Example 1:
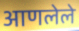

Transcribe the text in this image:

आणलेले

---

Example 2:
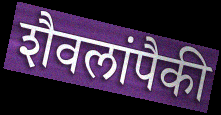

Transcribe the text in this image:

शैवलांपैकी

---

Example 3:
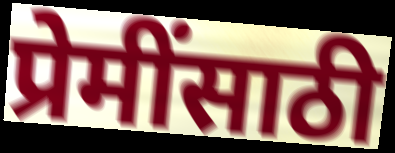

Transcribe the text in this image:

प्रेमींसाठी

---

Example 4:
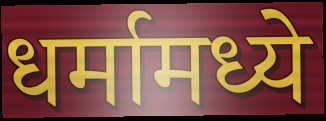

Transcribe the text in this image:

धर्मामध्ये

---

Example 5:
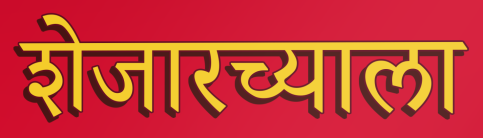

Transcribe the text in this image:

शेजारच्याला